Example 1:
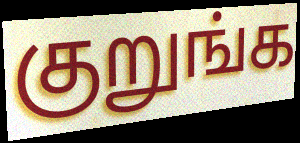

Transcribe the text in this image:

குறுங்க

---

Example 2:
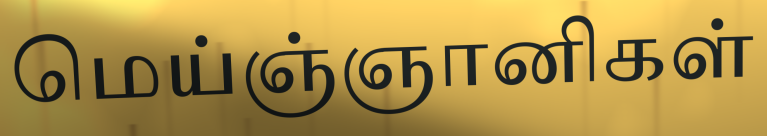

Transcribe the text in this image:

மெய்ஞ்ஞானிகள்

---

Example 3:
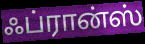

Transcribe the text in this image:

ஃப்ரான்ஸ்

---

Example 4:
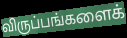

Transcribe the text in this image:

விருப்பங்களைக்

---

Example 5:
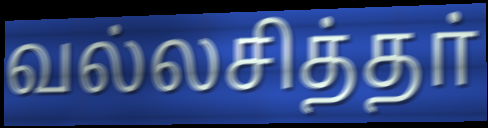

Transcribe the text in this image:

வல்லசித்தர்